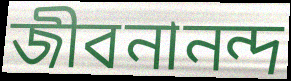
জীবনানন্দ